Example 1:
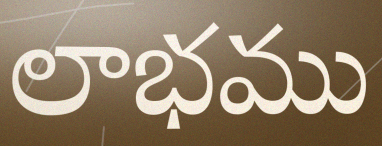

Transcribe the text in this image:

లాభము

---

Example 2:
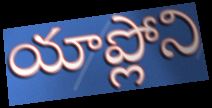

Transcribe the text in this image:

యాప్లోని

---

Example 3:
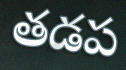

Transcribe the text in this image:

తడప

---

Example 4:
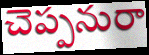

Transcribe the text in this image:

చెప్పనురా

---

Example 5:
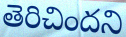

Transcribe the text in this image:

తెరిచిందని